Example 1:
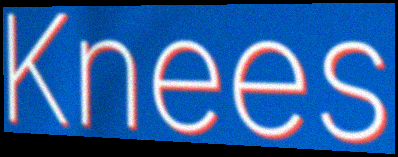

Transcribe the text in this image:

Knees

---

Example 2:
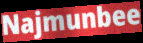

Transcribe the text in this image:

Najmunbee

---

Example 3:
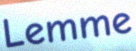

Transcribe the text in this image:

Lemme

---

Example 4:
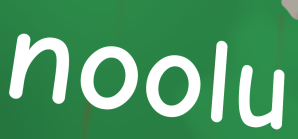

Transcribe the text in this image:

noolu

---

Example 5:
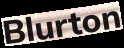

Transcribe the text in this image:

Blurton